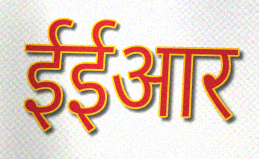
ईईआर